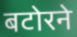
बटोरने